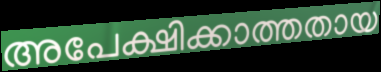
അപേക്ഷിക്കാത്തതായ